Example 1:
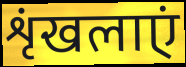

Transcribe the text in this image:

शृंखलाएं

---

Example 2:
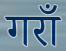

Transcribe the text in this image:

गराँ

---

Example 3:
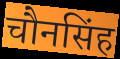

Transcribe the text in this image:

चौनसिंह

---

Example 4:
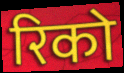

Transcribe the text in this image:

रिको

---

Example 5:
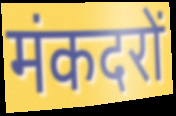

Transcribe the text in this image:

मंकदरों